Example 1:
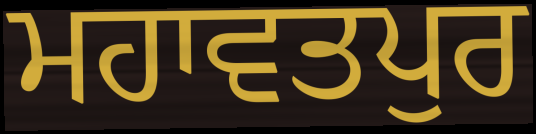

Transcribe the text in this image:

ਮਹਾਵਤਪੁਰ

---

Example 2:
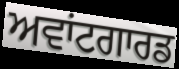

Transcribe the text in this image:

ਅਵਾਂਟਗਾਰਡ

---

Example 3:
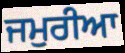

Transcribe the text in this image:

ਜਮੁਰੀਆ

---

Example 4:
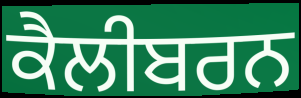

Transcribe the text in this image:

ਕੈਲੀਬਰਨ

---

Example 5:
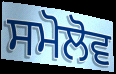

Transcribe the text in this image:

ਸਮੋਲੋਵ